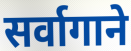
सर्वागाने